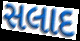
સલાદ